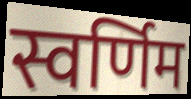
स्‍वर्णिम